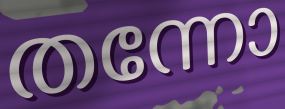
തന്നോ